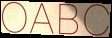
OABC